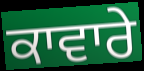
ਕਾਵਾਰੇ